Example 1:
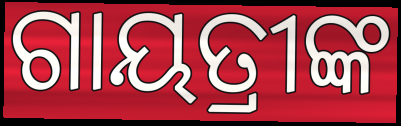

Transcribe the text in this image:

ଗାୟତ୍ରୀଙ୍କ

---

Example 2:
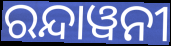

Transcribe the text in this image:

ରନ୍ଦାୱନୀ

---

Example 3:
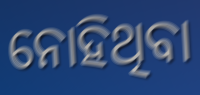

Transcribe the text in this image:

ନୋହିଥିବା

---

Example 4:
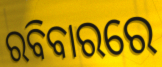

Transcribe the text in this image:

ରବିବାରରେ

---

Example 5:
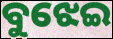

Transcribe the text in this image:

ବୁଝେଇ